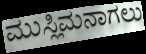
ಮುಸ್ಲಿಮನಾಗಲು